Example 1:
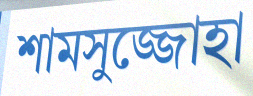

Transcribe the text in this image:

শামসুজ্জোহা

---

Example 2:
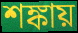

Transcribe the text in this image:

শঙ্কায়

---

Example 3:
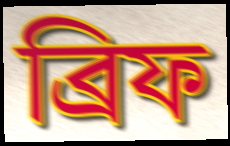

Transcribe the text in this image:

ব্রিফ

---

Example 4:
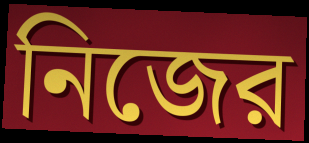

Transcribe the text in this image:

নিজের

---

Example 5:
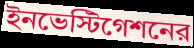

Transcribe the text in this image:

ইনভেস্টিগেশনের